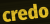
credo